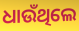
ଧାଉଁଥିଲେ